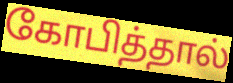
கோபித்தால்